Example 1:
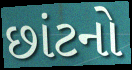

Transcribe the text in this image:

છાંટનો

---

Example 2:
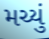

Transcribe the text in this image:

મચ્યું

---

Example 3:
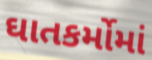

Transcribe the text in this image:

ઘાતકર્મોમાં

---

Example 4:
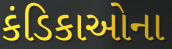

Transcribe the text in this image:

કંડિકાઓના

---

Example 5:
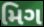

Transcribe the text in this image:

મિગ